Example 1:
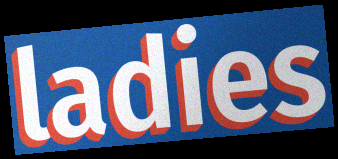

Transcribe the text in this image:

ladies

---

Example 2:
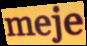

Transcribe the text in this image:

meje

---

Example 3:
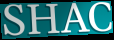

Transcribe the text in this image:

SHAC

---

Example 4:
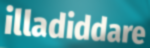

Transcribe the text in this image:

illadiddare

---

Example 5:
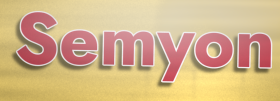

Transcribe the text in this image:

Semyon